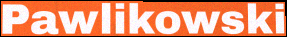
Pawlikowski